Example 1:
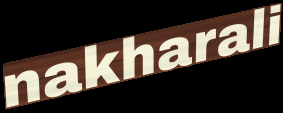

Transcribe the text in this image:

nakharali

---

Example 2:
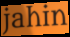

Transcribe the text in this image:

jahin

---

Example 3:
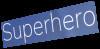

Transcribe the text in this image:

Superhero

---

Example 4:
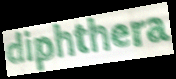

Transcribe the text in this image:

diphthera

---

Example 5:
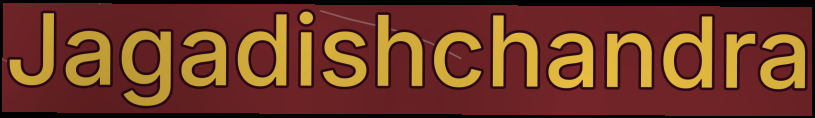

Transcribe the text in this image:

Jagadishchandra